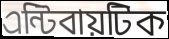
এন্টিবায়টিক